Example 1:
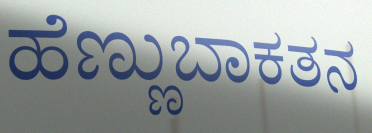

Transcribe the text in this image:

ಹೆಣ್ಣುಬಾಕತನ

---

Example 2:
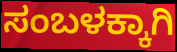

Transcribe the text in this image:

ಸಂಬಳಕ್ಕಾಗಿ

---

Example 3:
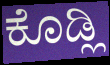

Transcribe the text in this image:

ಕೊಡ್ಲಿ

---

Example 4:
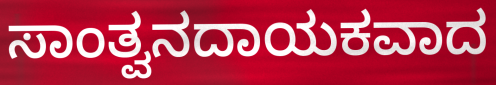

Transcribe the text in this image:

ಸಾಂತ್ವನದಾಯಕವಾದ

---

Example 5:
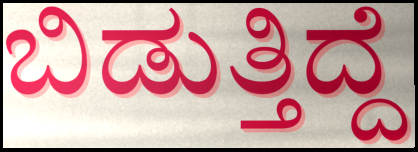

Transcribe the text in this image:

ಬಿಡುತ್ತಿದ್ದೆ